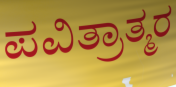
ಪವಿತ್ರಾತ್ಮರ